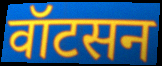
वॉटसन